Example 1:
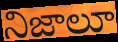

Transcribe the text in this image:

నిజాలూ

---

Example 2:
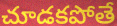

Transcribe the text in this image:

చూడకపోతే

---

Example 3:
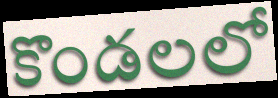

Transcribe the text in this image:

కొండలలో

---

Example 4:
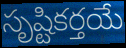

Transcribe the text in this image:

సృష్టికర్తయే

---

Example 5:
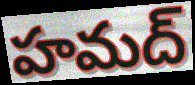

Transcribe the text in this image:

హమద్